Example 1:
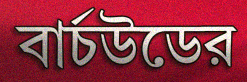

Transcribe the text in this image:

বার্চউডের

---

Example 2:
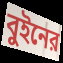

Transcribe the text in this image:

বুইনের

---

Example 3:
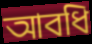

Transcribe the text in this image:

আবধি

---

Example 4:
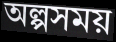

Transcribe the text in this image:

অল্পসময়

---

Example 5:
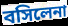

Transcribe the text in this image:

বসিলেনা